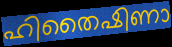
ഹിതൈഷിണാ